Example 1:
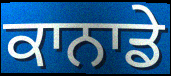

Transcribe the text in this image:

ਕਾਨਾਡੇ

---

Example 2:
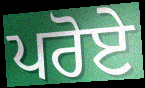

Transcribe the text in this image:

ਪਰੋਏ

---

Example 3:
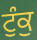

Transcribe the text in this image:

ਟੁੰਕੁ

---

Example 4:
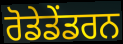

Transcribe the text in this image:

ਰੋਡੇਡੇਂਡਰਨ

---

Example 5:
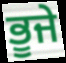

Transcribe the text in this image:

ਭੂਜੇ